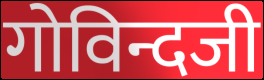
गोविन्दजी